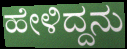
ಹೇಳಿದ್ದನು